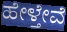
ಹೇಳ್ತೇವೆ